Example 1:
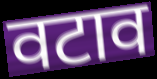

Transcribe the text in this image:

वटाव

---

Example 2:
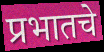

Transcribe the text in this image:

प्रभातचे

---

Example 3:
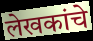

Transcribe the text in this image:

लेखकांचे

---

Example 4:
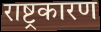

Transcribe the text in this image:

राष्ट्रकारण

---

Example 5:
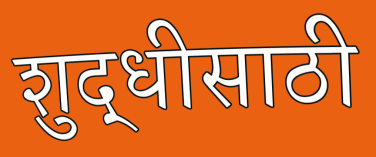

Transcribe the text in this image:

शुद्धीसाठी